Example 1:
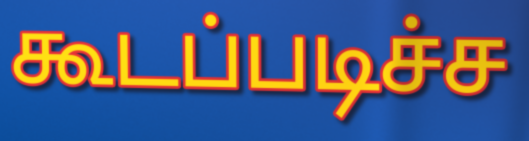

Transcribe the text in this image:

கூடப்படிச்ச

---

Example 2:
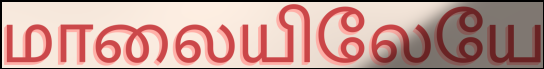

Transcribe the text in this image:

மாலையிலேயே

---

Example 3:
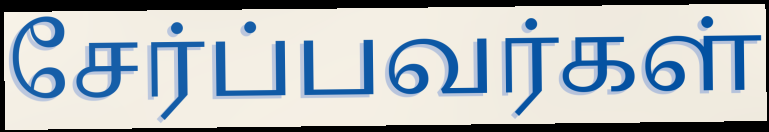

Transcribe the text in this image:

சேர்ப்பவர்கள்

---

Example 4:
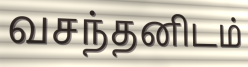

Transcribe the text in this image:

வசந்தனிடம்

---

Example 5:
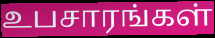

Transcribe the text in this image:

உபசாரங்கள்